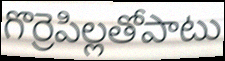
గొర్రెపిల్లతోపాటు